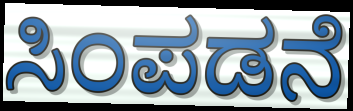
ಸಿಂಪಡನೆ